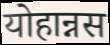
योहान्नस